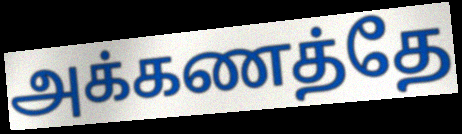
அக்கணத்தே